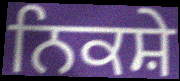
ਨਿਕਸ਼ੇ